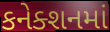
કનેક્શનમાં